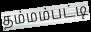
தம்மம்பட்டி